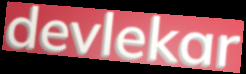
devlekar